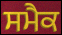
ਸਮੈਕ